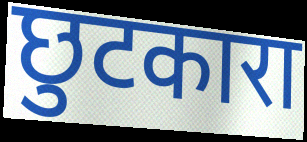
छुटकारा